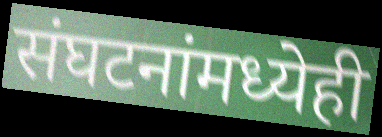
संघटनांमध्येही